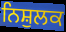
ਨਿਸ਼ੁਲਕ